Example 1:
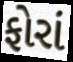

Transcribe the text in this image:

ફોરાં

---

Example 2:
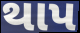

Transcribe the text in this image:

થાપ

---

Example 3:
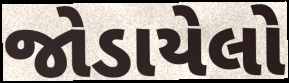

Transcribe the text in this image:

જોડાયેલો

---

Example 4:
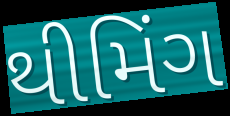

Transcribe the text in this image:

થીમિંગ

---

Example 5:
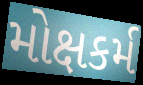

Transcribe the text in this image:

મોક્ષકર્મ